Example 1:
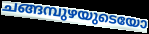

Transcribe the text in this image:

ചങ്ങമ്പുഴയുടെയോ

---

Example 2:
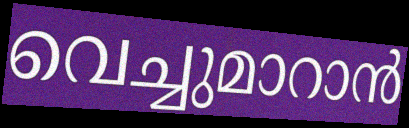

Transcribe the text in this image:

വെച്ചുമാറാൻ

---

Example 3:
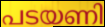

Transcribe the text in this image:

പടയണി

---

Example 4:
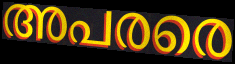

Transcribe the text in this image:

അപരരെ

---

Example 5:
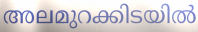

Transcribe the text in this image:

അലമുറക്കിടയിൽ